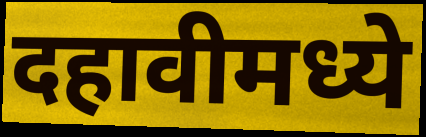
दहावीमध्ये